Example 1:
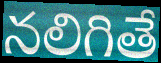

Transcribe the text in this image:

నలిగితే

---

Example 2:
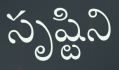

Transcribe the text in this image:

సృష్టిని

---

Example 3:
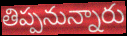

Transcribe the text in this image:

తిప్పనున్నారు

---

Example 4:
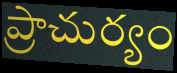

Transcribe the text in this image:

ప్రాచుర్యం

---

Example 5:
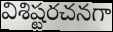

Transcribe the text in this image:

విశిష్టరచనగా